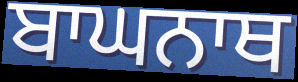
ਬਾਘਨਾਥ